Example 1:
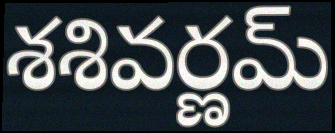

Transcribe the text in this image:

శశివర్ణమ్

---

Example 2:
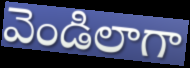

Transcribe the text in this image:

వెండిలాగా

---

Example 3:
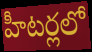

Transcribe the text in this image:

హీటర్లలో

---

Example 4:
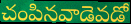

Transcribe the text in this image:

చంపినవాడెవడో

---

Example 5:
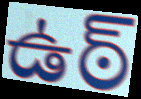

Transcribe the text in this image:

ఉఠ్